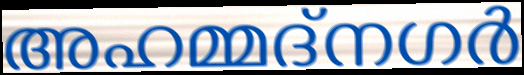
അഹമ്മദ്നഗർ